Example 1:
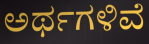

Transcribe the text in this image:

ಅರ್ಥಗಳಿವೆ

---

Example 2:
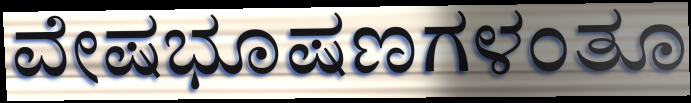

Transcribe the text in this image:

ವೇಷಭೂಷಣಗಳಂತೂ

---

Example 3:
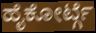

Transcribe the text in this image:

ಹೈಕೋರ್ಟ್ಗೆ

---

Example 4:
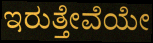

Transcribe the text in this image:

ಇರುತ್ತೇವೆಯೇ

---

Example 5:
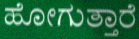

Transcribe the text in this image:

ಹೋಗುತ್ತಾರೆ